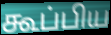
கூப்பிய